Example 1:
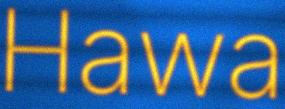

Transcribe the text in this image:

Hawa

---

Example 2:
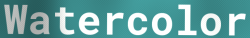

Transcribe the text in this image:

Watercolor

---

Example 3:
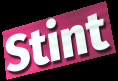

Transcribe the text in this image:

Stint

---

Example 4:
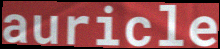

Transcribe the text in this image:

auricle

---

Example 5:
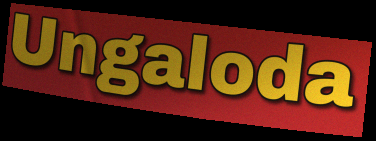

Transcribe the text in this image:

Ungaloda